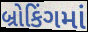
બ્રોકિંગમાં